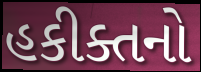
હકીક્તનો